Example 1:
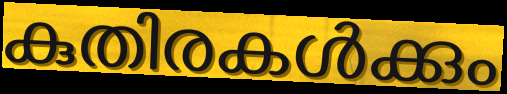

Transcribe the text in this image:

കുതിരകൾക്കും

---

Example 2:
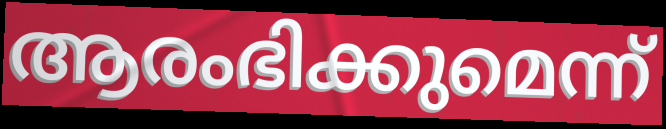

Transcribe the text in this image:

ആരംഭിക്കുമെന്ന്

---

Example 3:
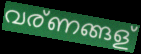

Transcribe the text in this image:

വര്ണങ്ങള്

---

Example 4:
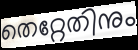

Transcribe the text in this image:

തെറ്റേതിനും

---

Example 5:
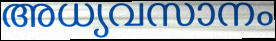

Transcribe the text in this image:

അധ്യവസാനം